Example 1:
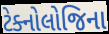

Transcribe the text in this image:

ટેક્નોલોજિના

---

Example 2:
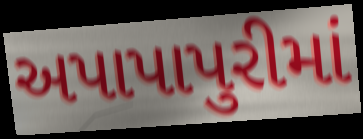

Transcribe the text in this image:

અપાપાપુરીમાં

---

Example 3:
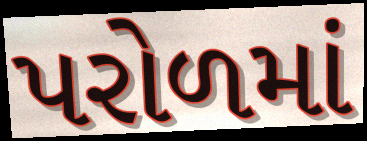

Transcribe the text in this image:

પરોળમાં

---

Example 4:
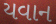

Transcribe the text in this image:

યવાન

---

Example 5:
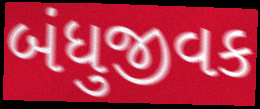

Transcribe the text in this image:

બંધુજીવક